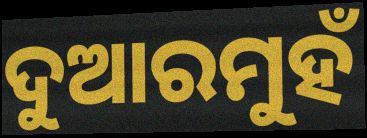
ଦୁଆରମୁହଁ